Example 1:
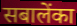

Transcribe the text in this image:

सबालेंका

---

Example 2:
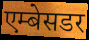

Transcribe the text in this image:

एम्बेसडर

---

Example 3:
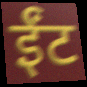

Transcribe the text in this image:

ईंट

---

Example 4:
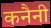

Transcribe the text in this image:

कनैनी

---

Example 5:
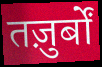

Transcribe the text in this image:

तज़ुर्बों